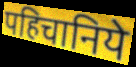
पहिचानिये